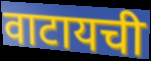
वाटायची